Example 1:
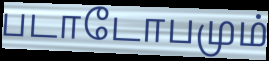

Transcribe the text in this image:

படாடோபமும்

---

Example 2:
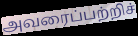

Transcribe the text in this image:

அவரைப்பற்றிச்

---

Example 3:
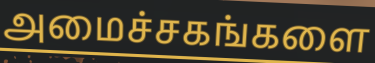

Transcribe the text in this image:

அமைச்சகங்களை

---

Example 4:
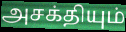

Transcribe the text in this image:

அசக்தியும்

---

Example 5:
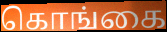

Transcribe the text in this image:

கொங்கை